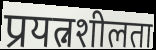
प्रयत्नशीलता